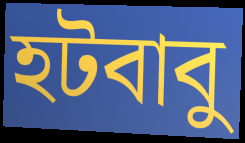
হটবাবু